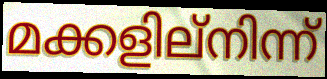
മക്കളില്നിന്ന്